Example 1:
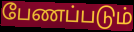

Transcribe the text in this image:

பேணப்படும்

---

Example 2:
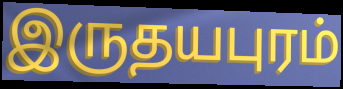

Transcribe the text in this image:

இருதயபுரம்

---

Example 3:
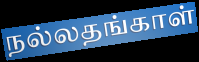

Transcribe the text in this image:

நல்லதங்காள்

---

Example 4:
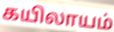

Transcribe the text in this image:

கயிலாயம்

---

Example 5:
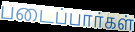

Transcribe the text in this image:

படைப்பார்கள்